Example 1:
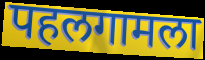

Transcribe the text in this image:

पहलगामला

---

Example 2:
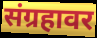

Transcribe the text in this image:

संग्रहावर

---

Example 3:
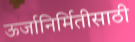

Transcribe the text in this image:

ऊर्जानिर्मितीसाठी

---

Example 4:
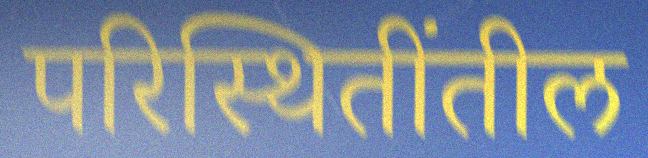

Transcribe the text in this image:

परिस्थितींतील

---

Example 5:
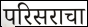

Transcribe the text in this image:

परिसराचा